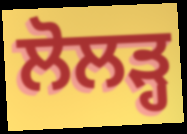
ਲੋਲੜ੍ਹ